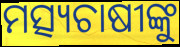
ମତ୍ସ୍ୟଚାଷୀଙ୍କୁ